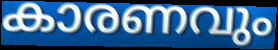
കാരണവും